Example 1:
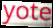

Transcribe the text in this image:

yote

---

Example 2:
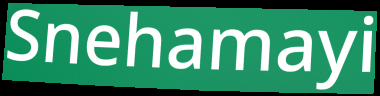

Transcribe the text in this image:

Snehamayi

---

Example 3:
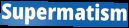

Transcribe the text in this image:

Supermatism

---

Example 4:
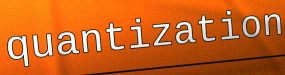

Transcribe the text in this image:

quantization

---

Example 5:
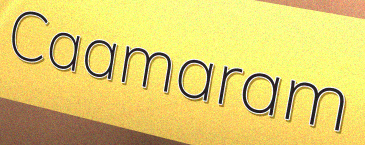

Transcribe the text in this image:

Caamaram